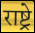
राष्ट्रे